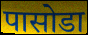
पासोडा